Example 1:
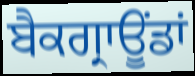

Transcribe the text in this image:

ਬੈਕਗ੍ਰਾਊਂਡਾਂ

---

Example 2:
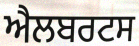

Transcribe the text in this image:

ਐਲਬਰਟਸ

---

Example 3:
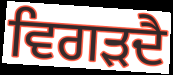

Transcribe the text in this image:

ਵਿਗੜਦੈ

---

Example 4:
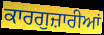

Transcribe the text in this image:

ਕਾਰਗੁਜ਼ਾਰੀਆਂ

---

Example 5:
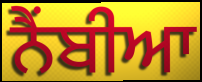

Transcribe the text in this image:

ਨੈਂਬੀਆ